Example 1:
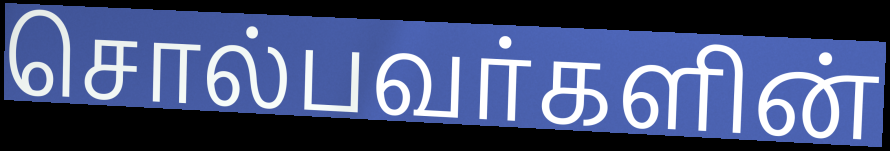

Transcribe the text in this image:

சொல்பவர்களின்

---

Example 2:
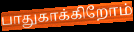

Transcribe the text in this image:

பாதுகாக்கிறோம்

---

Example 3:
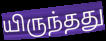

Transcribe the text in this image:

யிருந்தது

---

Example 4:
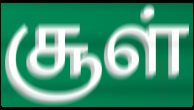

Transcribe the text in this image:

சூள்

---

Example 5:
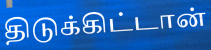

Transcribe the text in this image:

திடுக்கிட்டான்